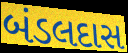
બંડલદાસ